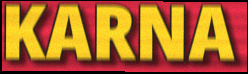
KARNA